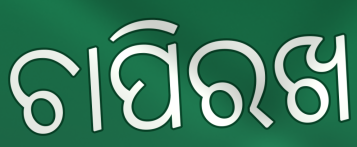
ଚାପିରଖ